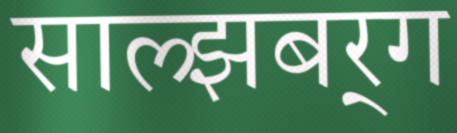
साल्झबर्ग